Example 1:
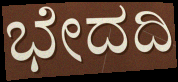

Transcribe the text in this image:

ಭೇದದಿ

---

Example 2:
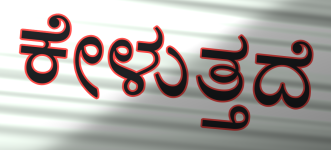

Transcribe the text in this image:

ಕೇಳುತ್ತದೆ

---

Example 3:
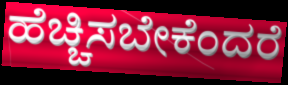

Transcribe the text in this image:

ಹೆಚ್ಚಿಸಬೇಕೆಂದರೆ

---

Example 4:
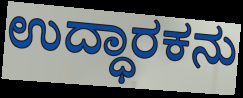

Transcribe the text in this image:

ಉದ್ಧಾರಕನು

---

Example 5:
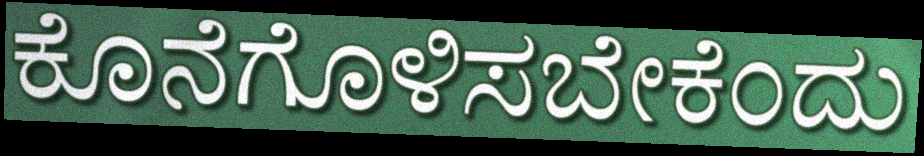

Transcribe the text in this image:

ಕೊನೆಗೊಳಿಸಬೇಕೆಂದು